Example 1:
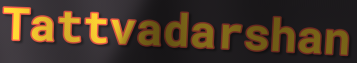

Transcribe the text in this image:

Tattvadarshan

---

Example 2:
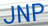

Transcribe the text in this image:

JNP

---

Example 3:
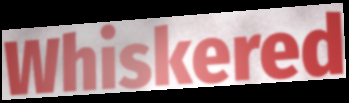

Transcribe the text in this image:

Whiskered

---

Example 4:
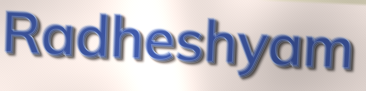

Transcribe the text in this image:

Radheshyam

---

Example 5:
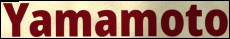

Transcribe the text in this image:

Yamamoto